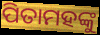
ପିତାମହଙ୍କୁ